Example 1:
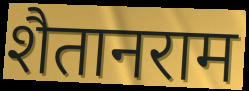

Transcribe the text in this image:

शैतानराम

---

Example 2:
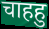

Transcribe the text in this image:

चाहहु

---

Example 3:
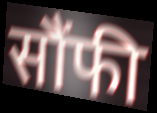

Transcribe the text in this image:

सौंफी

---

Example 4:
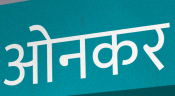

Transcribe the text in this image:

ओनकर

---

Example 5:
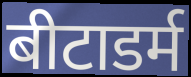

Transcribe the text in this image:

बीटाडर्म